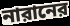
নারানের